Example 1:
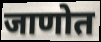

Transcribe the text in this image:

जाणोत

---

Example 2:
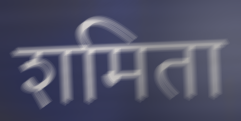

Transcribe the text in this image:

शमिता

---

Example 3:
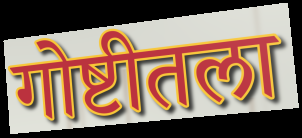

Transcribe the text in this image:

गोष्टीतला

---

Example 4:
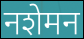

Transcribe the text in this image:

नशेमन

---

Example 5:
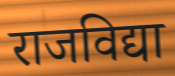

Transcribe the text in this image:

राजविद्या